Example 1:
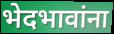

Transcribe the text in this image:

भेदभावांना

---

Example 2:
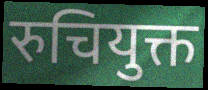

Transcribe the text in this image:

रुचियुक्त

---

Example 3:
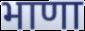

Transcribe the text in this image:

भाणा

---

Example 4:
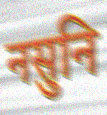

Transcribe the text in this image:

नसुनि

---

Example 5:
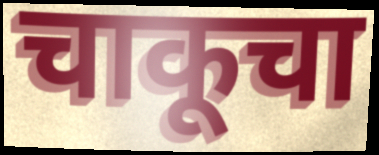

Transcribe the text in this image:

चाकूचा